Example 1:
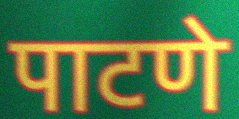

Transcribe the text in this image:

पाटणे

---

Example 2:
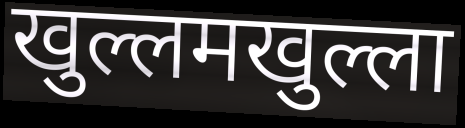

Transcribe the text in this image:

खुल्लमखुल्ला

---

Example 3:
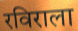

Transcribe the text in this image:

रविराला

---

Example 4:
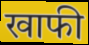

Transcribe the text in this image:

खाफी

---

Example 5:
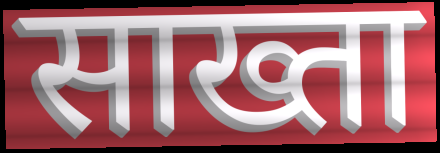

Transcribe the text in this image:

साख्ता